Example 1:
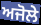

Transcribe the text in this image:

ਅਜੋਲੇ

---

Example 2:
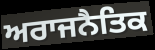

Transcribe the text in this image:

ਅਰਾਜਨੈਤਿਕ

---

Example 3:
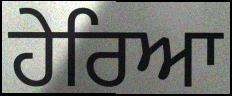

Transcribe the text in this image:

ਹੇਰਿਆ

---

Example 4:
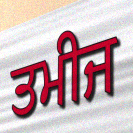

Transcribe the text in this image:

ਤਮੀਜ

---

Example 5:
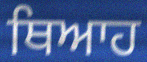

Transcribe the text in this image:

ਥਿਆਹ